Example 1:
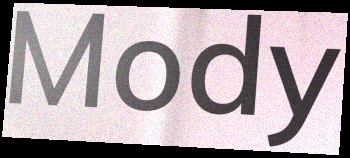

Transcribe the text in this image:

Mody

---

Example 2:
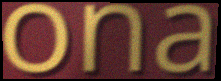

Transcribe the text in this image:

ona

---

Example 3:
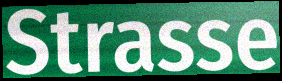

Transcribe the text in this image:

Strasse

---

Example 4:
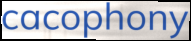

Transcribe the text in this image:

cacophony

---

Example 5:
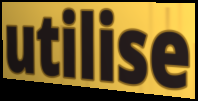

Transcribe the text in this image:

utilise